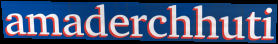
amaderchhuti